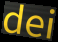
dei